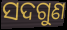
ସଦଗୁଣ